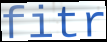
fitr